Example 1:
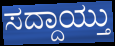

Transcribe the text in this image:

ಸದ್ದಾಯ್ತು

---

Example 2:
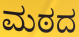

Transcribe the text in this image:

ಮಠದ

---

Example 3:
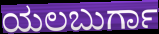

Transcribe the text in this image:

ಯಲಬುರ್ಗಾ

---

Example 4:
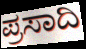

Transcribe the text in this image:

ಪ್ರಸಾದಿ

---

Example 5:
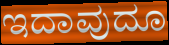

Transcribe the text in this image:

ಇದಾವುದೂ